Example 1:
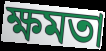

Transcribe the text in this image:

ক্ষমতা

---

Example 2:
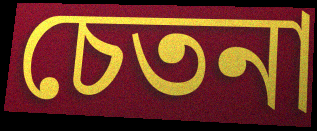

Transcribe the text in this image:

চেতনা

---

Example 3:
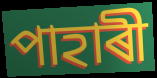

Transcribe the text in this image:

পাহাৰী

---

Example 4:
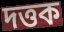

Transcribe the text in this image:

দত্তক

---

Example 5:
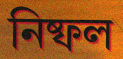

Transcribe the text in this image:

নিষ্ফল